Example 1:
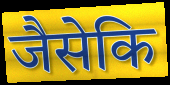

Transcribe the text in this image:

जैसेकि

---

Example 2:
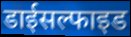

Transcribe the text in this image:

डाईसल्फाइड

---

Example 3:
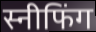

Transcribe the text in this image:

स्नीफिंग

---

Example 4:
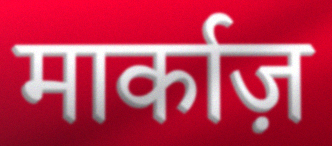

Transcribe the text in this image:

मार्काज़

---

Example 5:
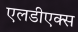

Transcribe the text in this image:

एलडीएक्स